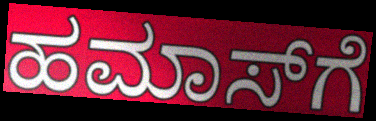
ಹಮಾಸ್‌ಗೆ